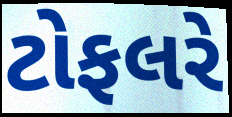
ટોફલરે